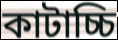
কাটাচ্চি